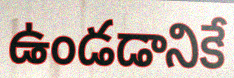
ఉండడానికే